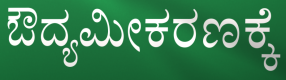
ಔದ್ಯಮೀಕರಣಕ್ಕೆ